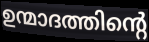
ഉന്മാദത്തിന്റെ